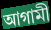
আগামী